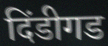
दिंडीगड